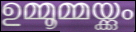
ഉമ്മൂമ്മയ്ക്കും